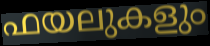
ഫയലുകളും